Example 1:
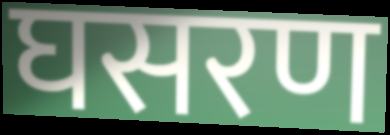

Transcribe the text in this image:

घसरण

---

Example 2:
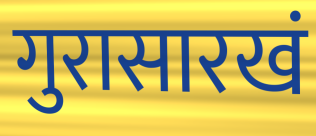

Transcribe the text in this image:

गुरासारखं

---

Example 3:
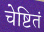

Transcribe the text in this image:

चेष्टितं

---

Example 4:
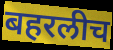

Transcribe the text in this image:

बहरलीच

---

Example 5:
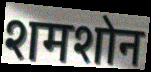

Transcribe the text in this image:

शमशोन